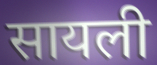
सायली